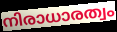
നിരാധാരത്വം